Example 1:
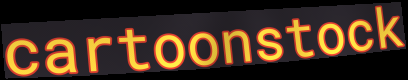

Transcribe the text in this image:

cartoonstock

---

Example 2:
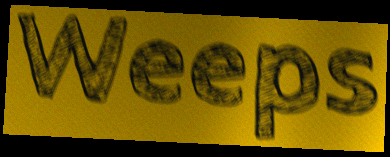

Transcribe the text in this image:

Weeps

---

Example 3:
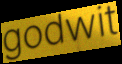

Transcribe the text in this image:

godwit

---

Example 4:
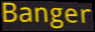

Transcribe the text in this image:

Banger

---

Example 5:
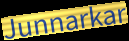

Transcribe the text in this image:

Junnarkar